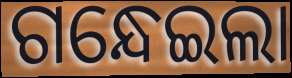
ଗନ୍ଧେଇଲା